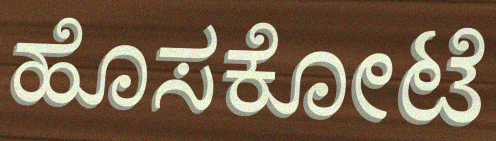
ಹೊಸಕೋಟೆ